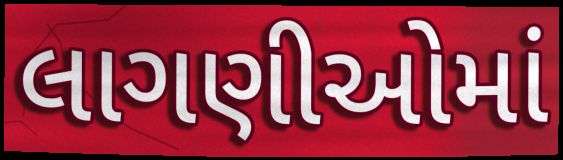
લાગણીઓમાં